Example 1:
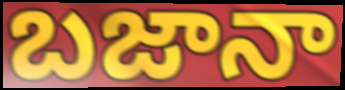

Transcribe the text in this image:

బజానా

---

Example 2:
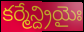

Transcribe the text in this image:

కర్మేన్ద్రియైః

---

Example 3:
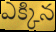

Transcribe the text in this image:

ఎక్కిన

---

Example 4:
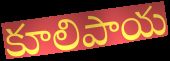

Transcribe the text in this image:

కూలిపాయ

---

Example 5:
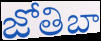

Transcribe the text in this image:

జోతిబా